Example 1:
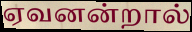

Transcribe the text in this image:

ஏவனன்றால்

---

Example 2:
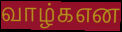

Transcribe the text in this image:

வாழ்கஎன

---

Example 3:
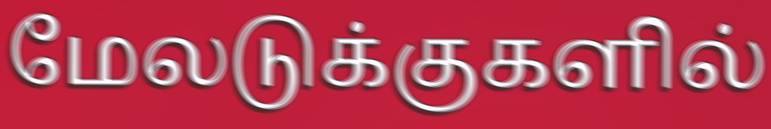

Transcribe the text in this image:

மேலடுக்குகளில்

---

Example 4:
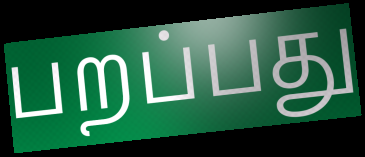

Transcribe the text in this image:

பறப்பது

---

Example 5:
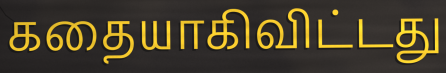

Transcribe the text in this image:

கதையாகிவிட்டது